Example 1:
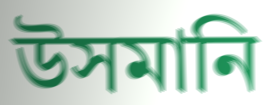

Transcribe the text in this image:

উসমানি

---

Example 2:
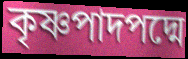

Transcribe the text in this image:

কৃষ্ণপাদপদ্মে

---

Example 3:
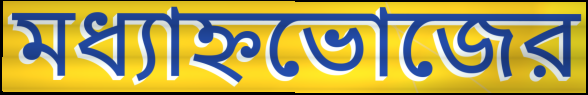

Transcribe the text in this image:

মধ্যাহ্নভোজের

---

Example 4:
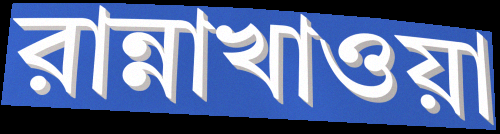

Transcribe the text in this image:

রান্নাখাওয়া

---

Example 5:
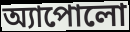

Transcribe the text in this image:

অ্যাপোলো